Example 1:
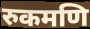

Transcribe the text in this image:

रुकमणि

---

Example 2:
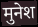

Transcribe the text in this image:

मुनेश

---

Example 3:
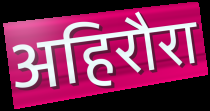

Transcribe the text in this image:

अहिरौरा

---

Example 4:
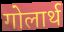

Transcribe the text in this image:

गोलार्थ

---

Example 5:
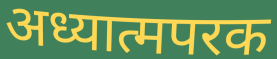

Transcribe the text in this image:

अध्यात्मपरक